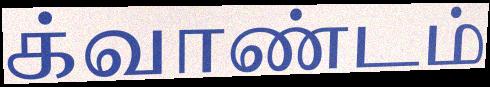
க்வாண்டம்